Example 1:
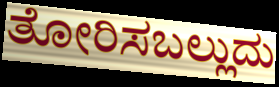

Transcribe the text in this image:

ತೋರಿಸಬಲ್ಲುದು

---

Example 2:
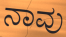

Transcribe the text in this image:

ನಾವು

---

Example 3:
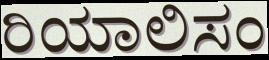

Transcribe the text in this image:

ರಿಯಾಲಿಸಂ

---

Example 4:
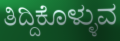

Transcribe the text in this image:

ತಿದ್ದಿಕೊಳ್ಳುವ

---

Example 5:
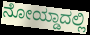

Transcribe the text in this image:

ನೋಯ್ಡಾದಲ್ಲಿ